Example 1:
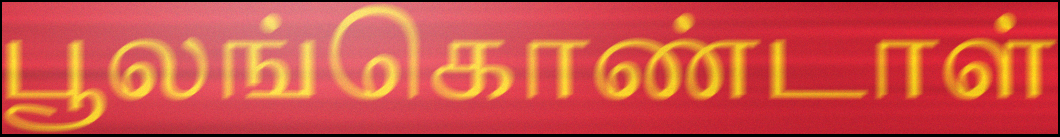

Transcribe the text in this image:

பூலங்கொண்டாள்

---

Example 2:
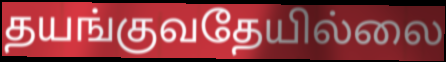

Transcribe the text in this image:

தயங்குவதேயில்லை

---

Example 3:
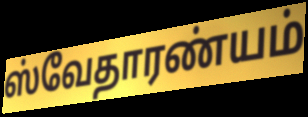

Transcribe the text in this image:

ஸ்வேதாரண்யம்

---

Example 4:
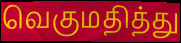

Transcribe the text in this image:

வெகுமதித்து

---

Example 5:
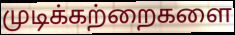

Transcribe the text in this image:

முடிக்கற்றைகளை